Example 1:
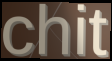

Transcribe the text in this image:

chit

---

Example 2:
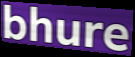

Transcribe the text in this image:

bhure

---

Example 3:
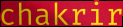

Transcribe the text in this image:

chakrir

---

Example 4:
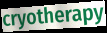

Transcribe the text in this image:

cryotherapy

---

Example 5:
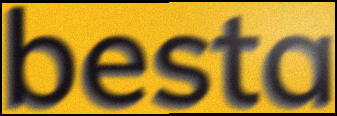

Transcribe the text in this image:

besta